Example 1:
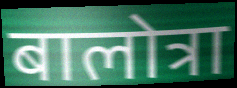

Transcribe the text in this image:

बालोत्रा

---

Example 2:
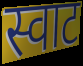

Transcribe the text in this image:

स्वाट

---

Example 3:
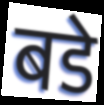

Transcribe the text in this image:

बडे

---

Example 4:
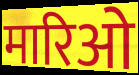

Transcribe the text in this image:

मारिओ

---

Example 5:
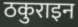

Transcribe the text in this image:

ठकुराइन